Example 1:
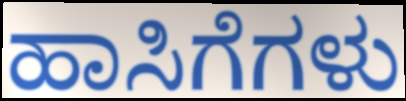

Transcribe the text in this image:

ಹಾಸಿಗೆಗಳು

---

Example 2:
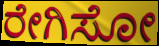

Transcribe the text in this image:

ರೇಗಿಸೋ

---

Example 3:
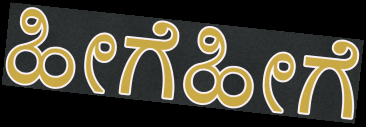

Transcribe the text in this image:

ಹೀಗೆಹೀಗೆ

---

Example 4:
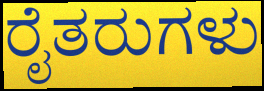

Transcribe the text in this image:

ರೈತರುಗಳು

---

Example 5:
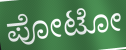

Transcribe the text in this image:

ಪೋಟೋ